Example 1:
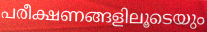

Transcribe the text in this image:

പരീക്ഷണങ്ങളിലൂടെയും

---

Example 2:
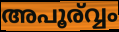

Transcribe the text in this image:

അപൂര്വ്വം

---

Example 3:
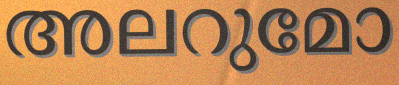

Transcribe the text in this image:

അലറുമോ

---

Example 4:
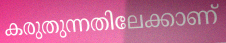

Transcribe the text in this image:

കരുതുന്നതിലേക്കാണ്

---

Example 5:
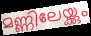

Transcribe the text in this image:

മണ്ണിലേയ്ക്കും